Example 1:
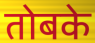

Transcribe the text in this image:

तोबके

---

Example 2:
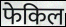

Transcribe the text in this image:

फेकिल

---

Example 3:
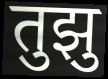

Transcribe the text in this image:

तुझु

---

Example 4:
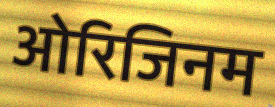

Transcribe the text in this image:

ओरिजिनम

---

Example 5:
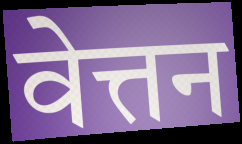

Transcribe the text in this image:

वेत्तन